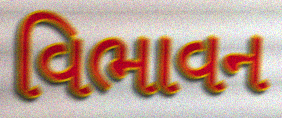
વિભાવન